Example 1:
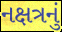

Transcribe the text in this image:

નક્ષત્રનું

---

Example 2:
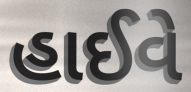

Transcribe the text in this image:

હાઈવે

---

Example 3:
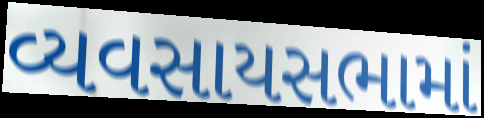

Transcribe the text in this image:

વ્યવસાયસભામાં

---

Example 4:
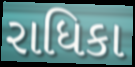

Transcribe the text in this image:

રાધિકા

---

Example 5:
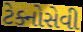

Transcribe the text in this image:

ટેક્નોસેવી